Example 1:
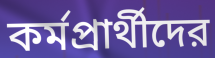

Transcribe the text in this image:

কর্মপ্রার্থীদের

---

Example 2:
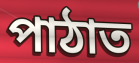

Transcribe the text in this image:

পাঠাত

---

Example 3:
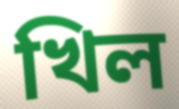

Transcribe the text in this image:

খিল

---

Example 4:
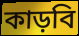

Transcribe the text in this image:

কাড়বি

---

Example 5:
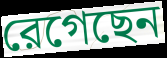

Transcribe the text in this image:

রেগেছেন